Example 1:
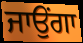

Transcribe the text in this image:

ਜਾਉਂਗਾ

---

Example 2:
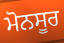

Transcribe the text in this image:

ਮੋਨਸੂਰ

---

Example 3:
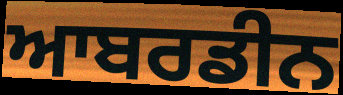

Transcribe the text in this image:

ਆਬਰਡੀਨ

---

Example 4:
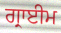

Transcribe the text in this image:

ਗ੍ਰਾਈਮ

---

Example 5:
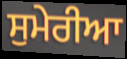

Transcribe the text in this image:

ਸੁਮੇਰੀਆ